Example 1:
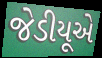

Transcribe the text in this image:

જેડીયૂએ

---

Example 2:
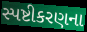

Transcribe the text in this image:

સ્પષ્ટીકરણના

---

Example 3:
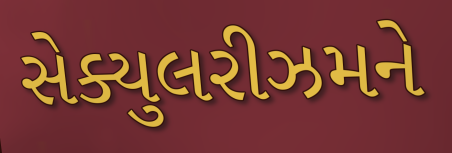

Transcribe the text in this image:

સેક્યુલરીઝમને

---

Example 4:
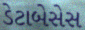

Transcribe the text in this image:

ડેટાબેસેસ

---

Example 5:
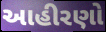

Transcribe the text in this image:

આહીરણો